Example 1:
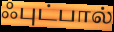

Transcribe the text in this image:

ஃபுட்பால்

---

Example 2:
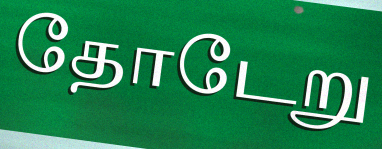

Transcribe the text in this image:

தோடேறு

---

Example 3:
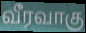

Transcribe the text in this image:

வீரவாகு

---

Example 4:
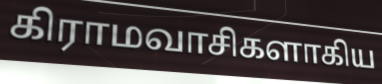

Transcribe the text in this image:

கிராமவாசிகளாகிய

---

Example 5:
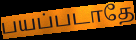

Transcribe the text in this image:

பயப்படாதே